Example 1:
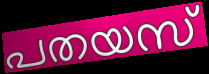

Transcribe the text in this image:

പതയസ്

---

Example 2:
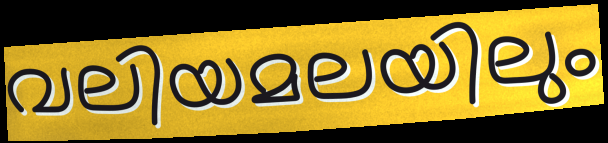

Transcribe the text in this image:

വലിയമലയിലും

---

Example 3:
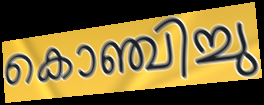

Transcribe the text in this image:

കൊഞ്ചിച്ചു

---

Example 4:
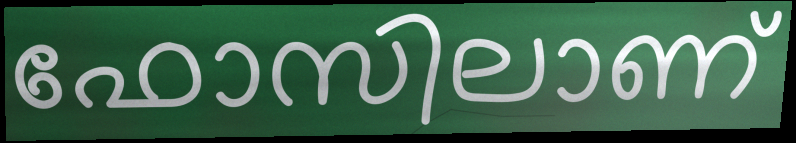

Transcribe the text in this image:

ഫോസിലാണ്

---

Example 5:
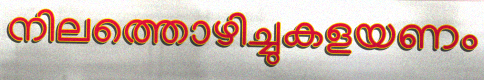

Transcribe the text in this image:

നിലത്തൊഴിച്ചുകളയണം